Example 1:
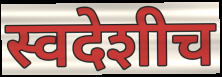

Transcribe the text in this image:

स्वदेशीच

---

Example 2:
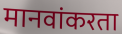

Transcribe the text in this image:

मानवांकरता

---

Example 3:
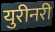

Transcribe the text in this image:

युरीनरी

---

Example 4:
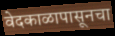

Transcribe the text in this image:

वेदकाळापासूनचा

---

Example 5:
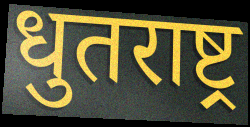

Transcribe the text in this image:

धुतराष्ट्र